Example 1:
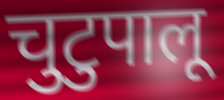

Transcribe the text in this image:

चुटुपालू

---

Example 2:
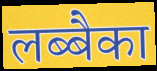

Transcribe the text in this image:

लब्बैका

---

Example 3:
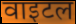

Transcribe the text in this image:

वाइटल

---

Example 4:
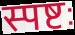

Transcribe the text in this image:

स्पष्टः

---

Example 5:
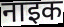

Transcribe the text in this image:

नाइक